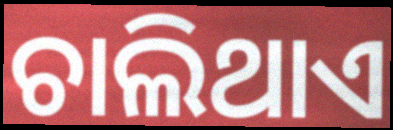
ଚାଲିଥାଏ